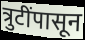
त्रुटींपासून